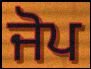
ਜੋਪ